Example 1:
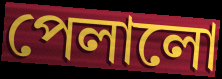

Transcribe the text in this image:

পেলালো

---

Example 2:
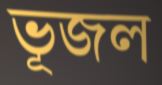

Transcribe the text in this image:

ভূজল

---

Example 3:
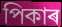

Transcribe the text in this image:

পিকাৰ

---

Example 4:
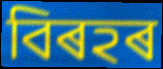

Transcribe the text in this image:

বিৰহৰ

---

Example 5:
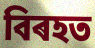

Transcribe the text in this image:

বিৰহত